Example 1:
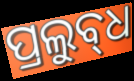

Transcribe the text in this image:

ପ୍ରଲୁବ୍‌ଧ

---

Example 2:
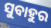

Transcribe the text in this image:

ସୁବାହୁର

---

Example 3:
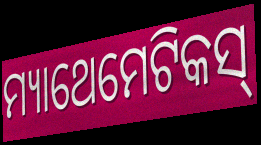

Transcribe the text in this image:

ମ୍ୟାଥେମେଟିକସ୍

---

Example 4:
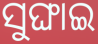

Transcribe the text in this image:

ସୁଙ୍ଘାଇ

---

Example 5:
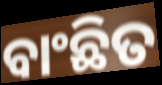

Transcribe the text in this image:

ବାଂଛିତ